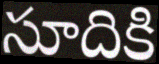
సూదికి